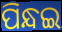
ପିନ୍ଧଇ